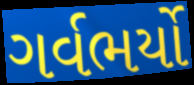
ગર્વભર્યો